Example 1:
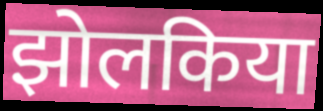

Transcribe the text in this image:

झोलकिया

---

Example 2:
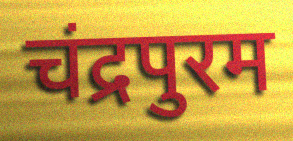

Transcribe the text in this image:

चंद्रपुरम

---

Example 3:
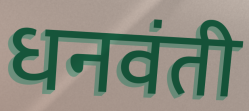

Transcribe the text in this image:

धनवंती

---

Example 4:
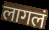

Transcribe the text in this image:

लागलं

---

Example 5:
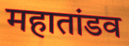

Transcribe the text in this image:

महातांडव